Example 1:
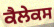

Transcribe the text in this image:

ਕੈਲੇਕਸ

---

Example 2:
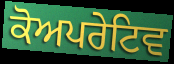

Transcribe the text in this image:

ਕੋਅਪਰੇਟਿਵ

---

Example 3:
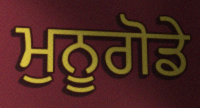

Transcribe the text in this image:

ਮੁਨੂਗੋਡੇ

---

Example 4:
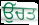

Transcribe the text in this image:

ਉੱਚਤ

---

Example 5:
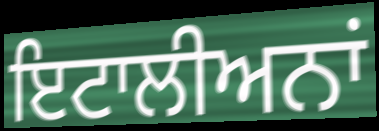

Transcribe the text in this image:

ਇਟਾਲੀਅਨਾਂ